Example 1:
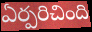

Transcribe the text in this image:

ఏర్పరిచింది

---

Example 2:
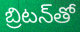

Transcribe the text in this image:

బ్రిటన్‌తో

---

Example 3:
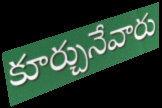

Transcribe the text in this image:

కూర్చునేవారు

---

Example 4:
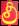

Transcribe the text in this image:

లీ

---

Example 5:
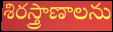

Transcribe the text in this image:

శిరస్త్రాణాలను